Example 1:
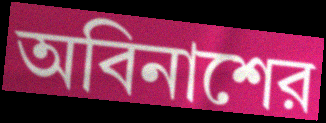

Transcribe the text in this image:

অবিনাশের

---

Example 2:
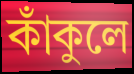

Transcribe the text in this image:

কাঁকুলে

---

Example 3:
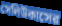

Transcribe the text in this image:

সেলিউকাসের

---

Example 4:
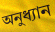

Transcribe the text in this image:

অনুধ্যান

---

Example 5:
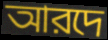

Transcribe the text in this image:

আরদে